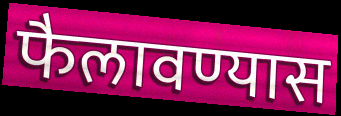
फैलावण्यास